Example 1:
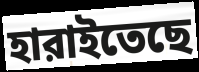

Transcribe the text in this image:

হারাইতেছে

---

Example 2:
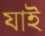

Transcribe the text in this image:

যাই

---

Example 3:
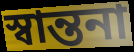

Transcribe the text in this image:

স্বান্তনা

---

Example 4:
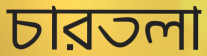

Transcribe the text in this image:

চারতলা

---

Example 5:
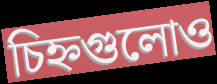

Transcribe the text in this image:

চিহ্নগুলোও